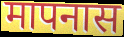
मापनास